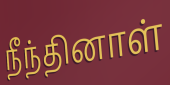
நீந்தினாள்